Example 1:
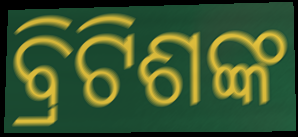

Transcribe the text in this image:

ବ୍ରିଟିଶଙ୍କ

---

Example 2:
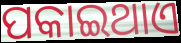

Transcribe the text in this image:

ପକାଇଥାଏ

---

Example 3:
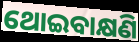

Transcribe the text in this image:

ଥୋଇବାକ୍ଷଣି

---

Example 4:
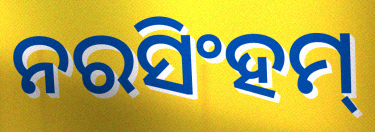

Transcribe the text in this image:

ନରସିଂହମ୍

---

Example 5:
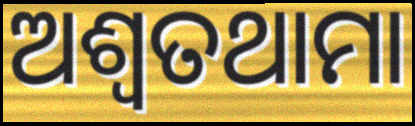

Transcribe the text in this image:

ଅଶ୍ୱତଥାମା